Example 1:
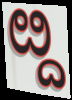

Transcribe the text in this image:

ೞ್ದ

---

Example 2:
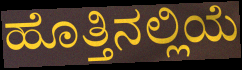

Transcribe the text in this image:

ಹೊತ್ತಿನಲ್ಲಿಯೆ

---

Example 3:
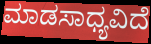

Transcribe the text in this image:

ಮಾಡಸಾಧ್ಯವಿದೆ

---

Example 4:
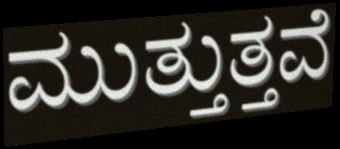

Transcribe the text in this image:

ಮುತ್ತುತ್ತವೆ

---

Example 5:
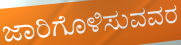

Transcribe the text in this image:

ಜಾರಿಗೊಳಿಸುವವರ